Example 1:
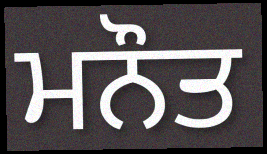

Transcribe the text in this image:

ਮਨੌਤ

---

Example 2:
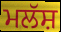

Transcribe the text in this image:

ਮਲੱਸ਼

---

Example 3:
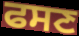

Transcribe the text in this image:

ਫਸਣ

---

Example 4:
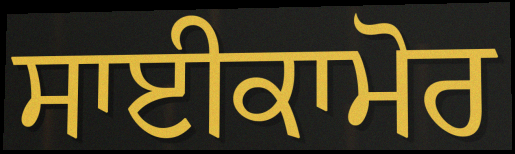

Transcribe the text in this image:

ਸਾਈਕਾਮੋਰ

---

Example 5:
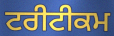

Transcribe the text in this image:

ਟਰੀਟੀਕਮ